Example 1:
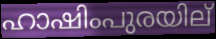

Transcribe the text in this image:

ഹാഷിംപുരയില്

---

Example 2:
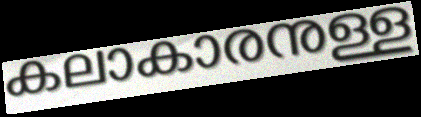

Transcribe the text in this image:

കലാകാരനുള്ള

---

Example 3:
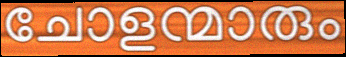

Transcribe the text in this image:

ചോളന്മാരും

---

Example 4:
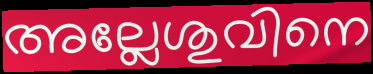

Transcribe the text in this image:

അല്ലേശുവിനെ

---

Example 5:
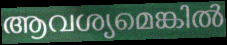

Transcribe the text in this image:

ആവശ്യമെങ്കിൽ